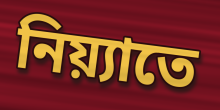
নিয়্যাতে